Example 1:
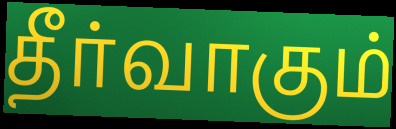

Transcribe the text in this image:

தீர்வாகும்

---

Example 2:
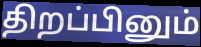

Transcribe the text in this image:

திறப்பினும்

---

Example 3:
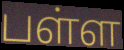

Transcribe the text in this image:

பள்ள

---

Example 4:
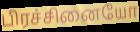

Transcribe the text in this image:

பிரச்சினையோ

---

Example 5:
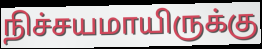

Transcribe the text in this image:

நிச்சயமாயிருக்கு